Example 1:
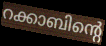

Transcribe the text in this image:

റക്കാബിന്റെ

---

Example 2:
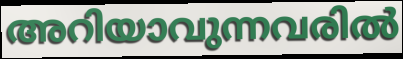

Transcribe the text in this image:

അറിയാവുന്നവരിൽ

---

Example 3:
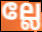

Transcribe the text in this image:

ല്ലേ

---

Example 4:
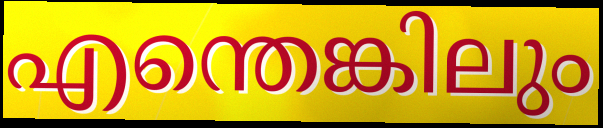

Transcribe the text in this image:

എന്തെങ്കിലും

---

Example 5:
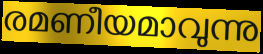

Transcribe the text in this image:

രമണീയമാവുന്നു